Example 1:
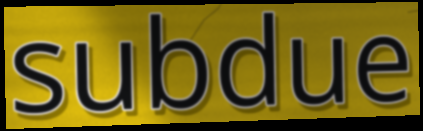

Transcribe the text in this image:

subdue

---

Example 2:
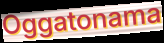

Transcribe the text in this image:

Oggatonama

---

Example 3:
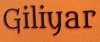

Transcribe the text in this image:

Giliyar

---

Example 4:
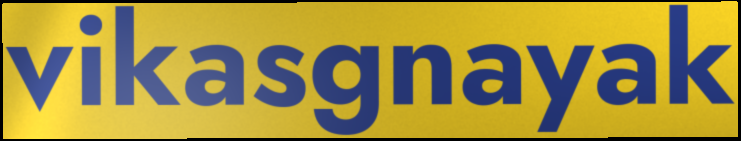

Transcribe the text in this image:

vikasgnayak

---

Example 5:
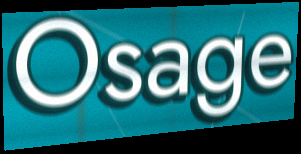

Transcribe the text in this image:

Osage